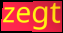
zegt